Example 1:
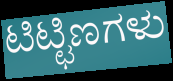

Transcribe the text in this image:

ಟಿಟ್ಟಿಣಗಳು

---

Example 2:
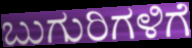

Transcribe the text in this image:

ಬುಗುರಿಗಳಿಗೆ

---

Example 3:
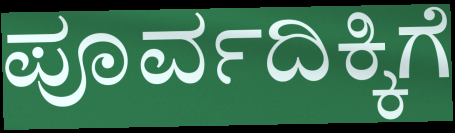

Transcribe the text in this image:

ಪೂರ್ವದಿಕ್ಕಿಗೆ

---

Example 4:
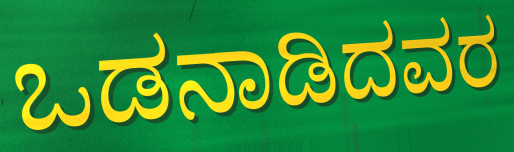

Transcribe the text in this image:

ಒಡನಾಡಿದವರ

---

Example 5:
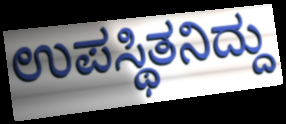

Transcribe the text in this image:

ಉಪಸ್ಥಿತನಿದ್ದು